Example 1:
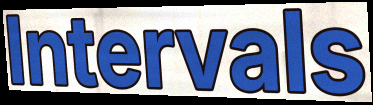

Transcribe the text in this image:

Intervals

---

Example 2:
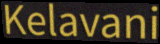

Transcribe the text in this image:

Kelavani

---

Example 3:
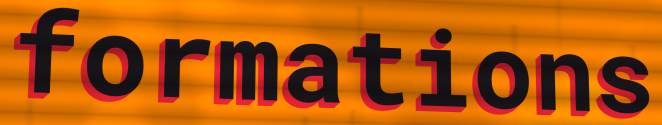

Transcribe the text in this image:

formations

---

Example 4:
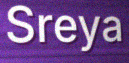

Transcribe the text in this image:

Sreya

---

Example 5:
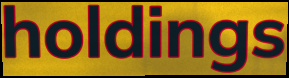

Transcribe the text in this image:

holdings